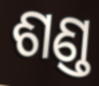
ଶଣ୍ଡ